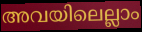
അവയിലെല്ലാം